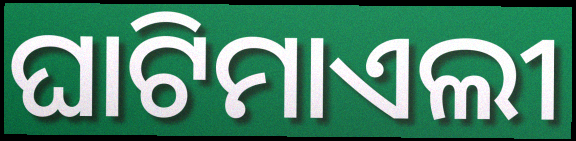
ଘାଟିମାଏଲୀ